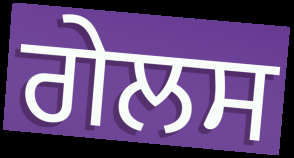
ਗੇਲਸ